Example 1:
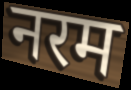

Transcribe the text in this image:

नरम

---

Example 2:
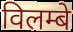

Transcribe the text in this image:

विलम्बे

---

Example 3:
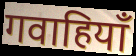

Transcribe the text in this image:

गवाहियाँ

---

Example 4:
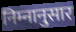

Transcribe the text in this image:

निम्‍नानुसार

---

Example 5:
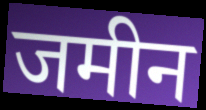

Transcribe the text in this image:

जमीन